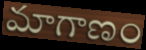
మాగాణం